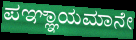
ಪಞ್ಞಾಯಮಾನೇ